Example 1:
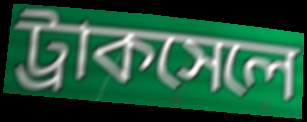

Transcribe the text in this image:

ট্রাকসেলে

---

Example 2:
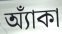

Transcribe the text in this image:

অ্যাঁকা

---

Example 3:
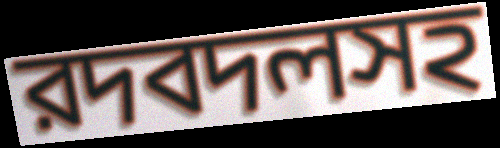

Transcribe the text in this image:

রদবদলসহ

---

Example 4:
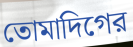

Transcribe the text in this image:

তোমাদিগের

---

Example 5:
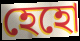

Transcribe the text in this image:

হেহো